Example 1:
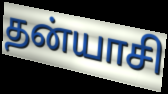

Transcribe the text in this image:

தன்யாசி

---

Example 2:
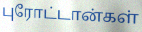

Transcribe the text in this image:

புரோட்டான்கள்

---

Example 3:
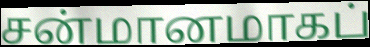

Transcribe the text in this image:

சன்மானமாகப்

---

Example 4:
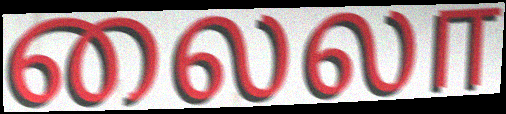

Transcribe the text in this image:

லைலா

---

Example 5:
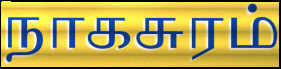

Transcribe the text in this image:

நாகசுரம்